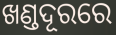
ଖଣ୍ଡଦୂରରେ